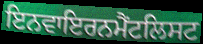
ਇਨਵਾਇਰਨਮੈਂਟਲਿਸਟ